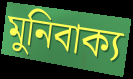
মুনিবাক্য